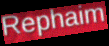
Rephaim